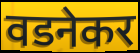
वडनेकर